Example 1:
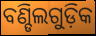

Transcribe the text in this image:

ବଣ୍ଡିଲଗୁଡ଼ିକ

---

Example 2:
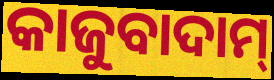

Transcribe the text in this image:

କାଜୁବାଦାମ୍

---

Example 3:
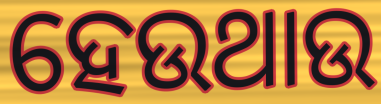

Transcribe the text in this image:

ହେଉଥାଉ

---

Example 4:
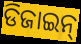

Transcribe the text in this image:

ଡିଜାଇନ୍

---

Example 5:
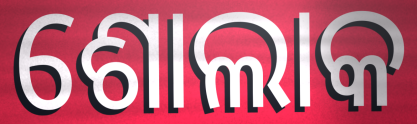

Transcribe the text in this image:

ଶୋଲାକ